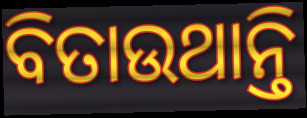
ବିତାଉଥାନ୍ତି